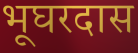
भूघरदास